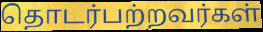
தொடர்பற்றவர்கள்